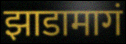
झाडामागं